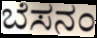
ಬೆಸನಂ